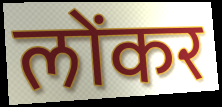
लोंकर